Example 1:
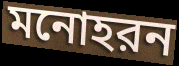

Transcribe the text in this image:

মনোহরন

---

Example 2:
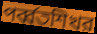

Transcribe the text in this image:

পর্ব্বতশিখর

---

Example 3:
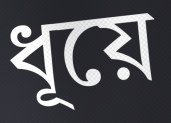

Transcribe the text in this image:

ধূয়ে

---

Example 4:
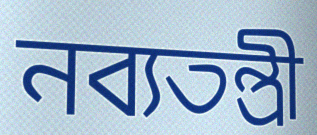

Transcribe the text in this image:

নব্যতন্ত্রী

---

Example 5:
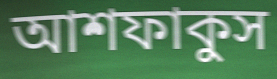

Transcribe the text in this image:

আশফাকুস